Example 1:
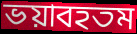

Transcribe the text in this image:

ভয়াবহতম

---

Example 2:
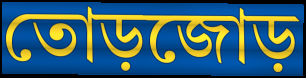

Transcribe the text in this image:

তোড়জোড়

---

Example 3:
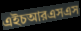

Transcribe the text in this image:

এইচআরএসএস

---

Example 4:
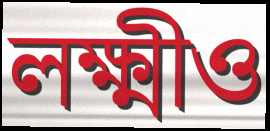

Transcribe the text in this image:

লক্ষ্মীও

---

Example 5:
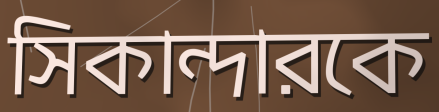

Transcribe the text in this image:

সিকান্দারকে